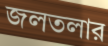
জলতলার